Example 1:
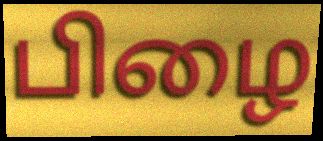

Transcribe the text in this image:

பிழை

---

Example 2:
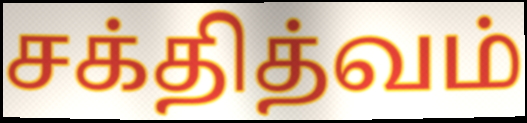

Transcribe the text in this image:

சக்தித்வம்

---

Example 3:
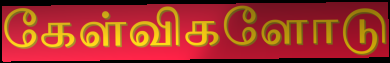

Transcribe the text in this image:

கேள்விகளோடு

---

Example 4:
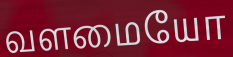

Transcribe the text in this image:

வளமையோ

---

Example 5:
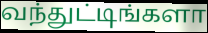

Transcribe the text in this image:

வந்துட்டிங்களா